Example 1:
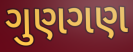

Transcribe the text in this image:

ગુણગણ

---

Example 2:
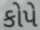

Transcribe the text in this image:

કોપે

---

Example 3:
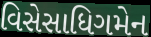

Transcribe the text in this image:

વિસેસાધિગમેન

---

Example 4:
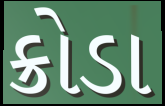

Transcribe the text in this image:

ક્રોડા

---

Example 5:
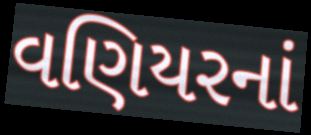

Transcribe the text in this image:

વણિયરનાં